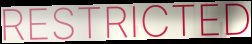
RESTRICTED